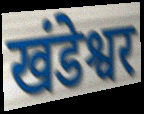
खंडेश्वर